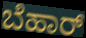
ಬೆಹಾರ್